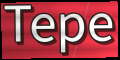
Tepe